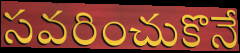
సవరించుకొనే